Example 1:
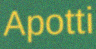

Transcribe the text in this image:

Apotti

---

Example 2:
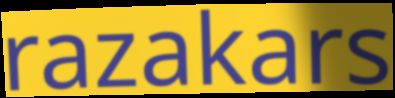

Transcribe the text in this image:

razakars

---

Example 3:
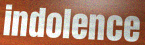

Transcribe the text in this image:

indolence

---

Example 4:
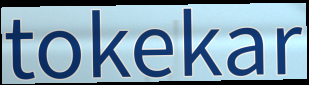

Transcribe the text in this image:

tokekar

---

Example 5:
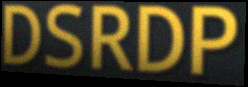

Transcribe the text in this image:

DSRDP